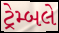
ટ્રેમ્બલે